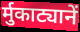
र्मुकाट्यानें